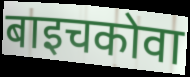
बाइचकोवा